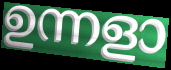
ഉന്നളാ